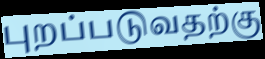
புறப்படுவதற்கு